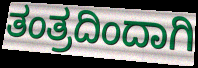
ತಂತ್ರದಿಂದಾಗಿ